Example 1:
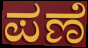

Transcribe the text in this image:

ಪಣೆ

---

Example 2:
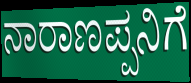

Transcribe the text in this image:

ನಾರಾಣಪ್ಪನಿಗೆ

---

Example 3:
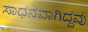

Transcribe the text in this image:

ಸಾಧನವಾಗಿದ್ದವು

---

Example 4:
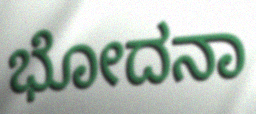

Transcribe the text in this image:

ಭೋದನಾ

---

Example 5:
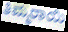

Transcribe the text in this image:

ತಿಮ್ಮರಾಯಿ